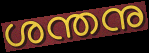
ശന്തനു